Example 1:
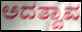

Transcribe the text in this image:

ಅದತ್ವಾವ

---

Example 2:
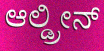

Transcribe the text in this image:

ಆಲ್ಡ್ರೀನ್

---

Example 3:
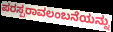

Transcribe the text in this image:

ಪರಸ್ಪರಾವಲಂಬನೆಯನ್ನು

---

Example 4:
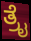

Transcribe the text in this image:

ತ್ರೈ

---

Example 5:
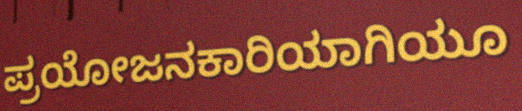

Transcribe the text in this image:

ಪ್ರಯೋಜನಕಾರಿಯಾಗಿಯೂ